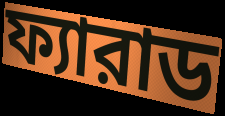
ফ্যারাড